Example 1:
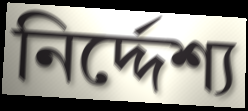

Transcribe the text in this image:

নির্দ্দেশ্য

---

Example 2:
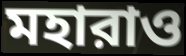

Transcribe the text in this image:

মহারাও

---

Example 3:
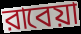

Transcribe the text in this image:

রাবেয়া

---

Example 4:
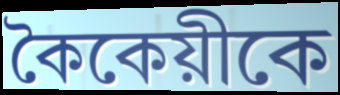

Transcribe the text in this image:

কৈকেয়ীকে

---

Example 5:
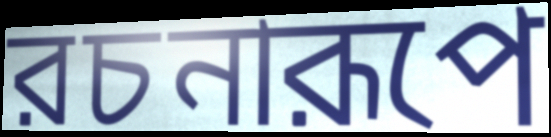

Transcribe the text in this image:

রচনারূপে